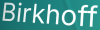
Birkhoff